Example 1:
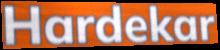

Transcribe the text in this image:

Hardekar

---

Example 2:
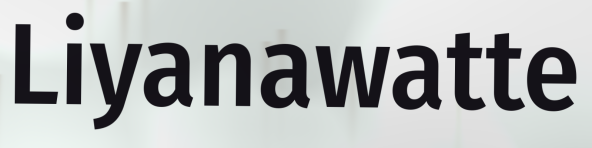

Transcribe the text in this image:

Liyanawatte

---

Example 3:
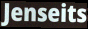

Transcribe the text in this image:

Jenseits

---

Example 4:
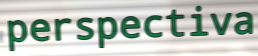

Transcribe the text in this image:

perspectiva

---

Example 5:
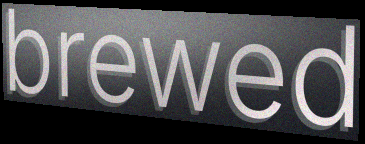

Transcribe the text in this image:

brewed